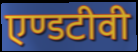
एण्डटीवी